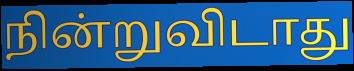
நின்றுவிடாது